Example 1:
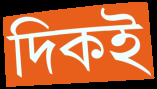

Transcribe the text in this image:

দিকই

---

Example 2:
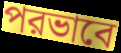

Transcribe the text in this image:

পরভাবে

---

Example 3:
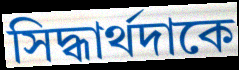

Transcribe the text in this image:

সিদ্ধার্থদাকে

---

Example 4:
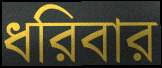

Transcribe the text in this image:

ধরিবার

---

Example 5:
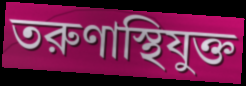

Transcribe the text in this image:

তরুণাস্থিযুক্ত